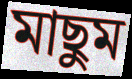
মাছুম